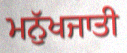
ਮਨੁੱਖਜਾਤੀ